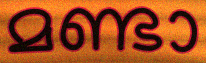
മണ്ടാ